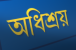
অধিশ্রয়